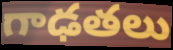
గాఢతలు